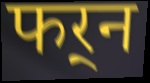
फर्न